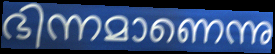
ഭിന്നമാണെന്നു